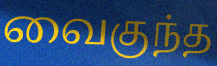
வைகுந்த